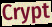
Crypt